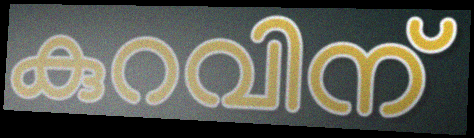
കുറവിന്